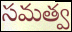
సమత్వ